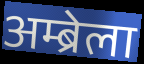
अम्‍ब्रेला